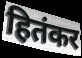
हितंकर